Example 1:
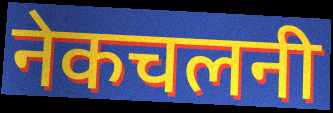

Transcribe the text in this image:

नेकचलनी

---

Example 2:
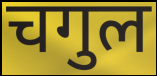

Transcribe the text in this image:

चगुल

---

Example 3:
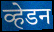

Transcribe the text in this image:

व्हेडन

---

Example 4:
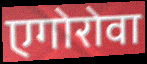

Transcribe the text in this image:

एगोरोवा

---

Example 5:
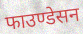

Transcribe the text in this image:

फाउण्डेसन